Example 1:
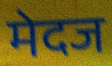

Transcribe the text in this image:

मेदज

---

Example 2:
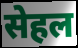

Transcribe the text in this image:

सेहल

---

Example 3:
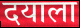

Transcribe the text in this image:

दयाला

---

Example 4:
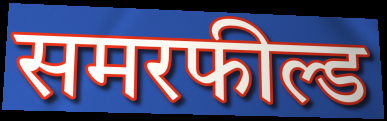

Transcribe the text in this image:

समरफील्ड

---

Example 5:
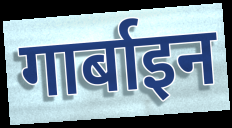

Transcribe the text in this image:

गार्बाइन